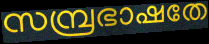
സമ്പ്രഭാഷതേ